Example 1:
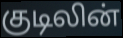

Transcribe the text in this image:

குடிலின்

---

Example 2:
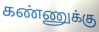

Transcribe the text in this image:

கண்ணுக்கு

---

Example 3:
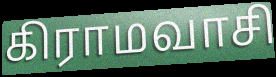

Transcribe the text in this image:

கிராமவாசி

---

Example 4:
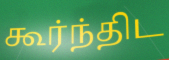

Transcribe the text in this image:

கூர்ந்திட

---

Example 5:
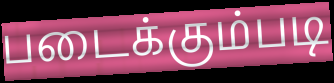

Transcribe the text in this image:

படைக்கும்படி